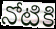
నోటికి